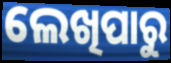
ଲେଖିପାରୁ